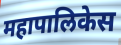
महापालिकेस